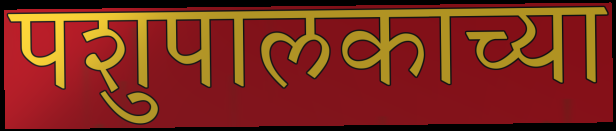
पशुपालकाच्या